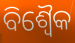
ବିଶ୍ୱୈକ